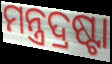
ମନ୍ତ୍ରଦ୍ରଷ୍ଟା